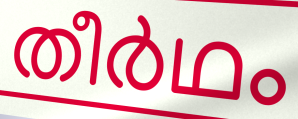
തീർഥം